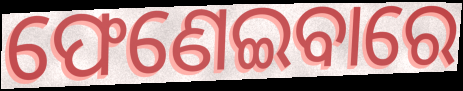
ଫେଣେଇବାରେ